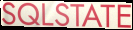
SQLSTATE